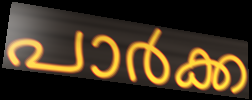
പാർക്ക